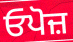
ਓਪੋਜ਼